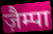
ज़ैम्पा